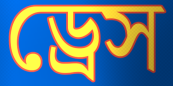
ড্রেস